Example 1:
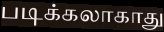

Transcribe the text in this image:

படிக்கலாகாது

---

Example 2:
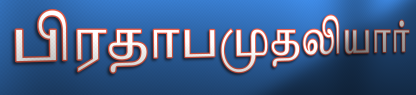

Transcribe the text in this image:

பிரதாபமுதலியார்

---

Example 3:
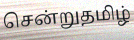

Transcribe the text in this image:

சென்றுதமிழ்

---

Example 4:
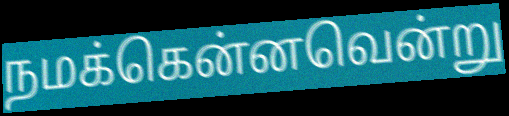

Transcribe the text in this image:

நமக்கென்னவென்று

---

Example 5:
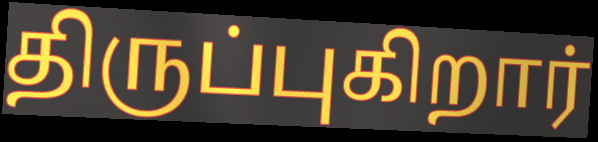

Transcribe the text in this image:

திருப்புகிறார்